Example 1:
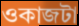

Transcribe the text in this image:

ওকাজটা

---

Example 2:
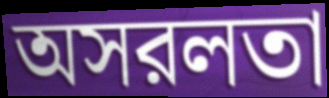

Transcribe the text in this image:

অসরলতা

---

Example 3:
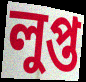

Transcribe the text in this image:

লুপ্ত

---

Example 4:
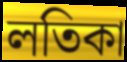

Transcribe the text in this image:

লতিকা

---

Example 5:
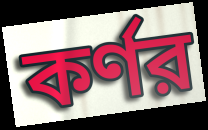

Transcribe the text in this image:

কর্ণর